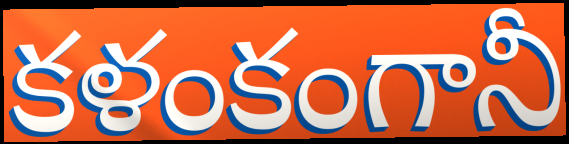
కళంకంగానీ